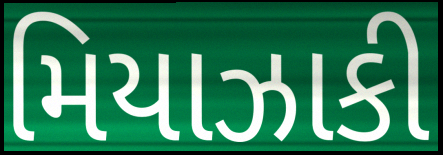
મિયાઝાકી